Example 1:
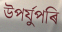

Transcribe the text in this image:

উপৰ্যুপৰি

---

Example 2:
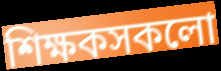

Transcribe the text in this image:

শিক্ষকসকলো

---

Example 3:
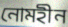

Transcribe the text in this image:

নোমহীন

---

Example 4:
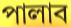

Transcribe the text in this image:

পালাব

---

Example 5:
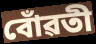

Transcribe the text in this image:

বোঁৱতী